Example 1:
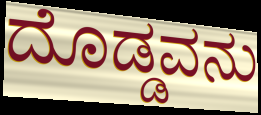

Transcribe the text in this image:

ದೊಡ್ಡವನು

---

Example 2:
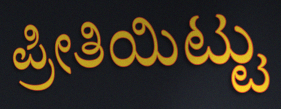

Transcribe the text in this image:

ಪ್ರೀತಿಯಿಟ್ಟು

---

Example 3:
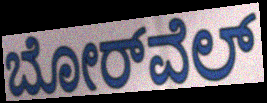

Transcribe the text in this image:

ಬೋರ್‌ವೆಲ್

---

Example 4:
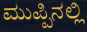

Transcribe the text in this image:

ಮುಪ್ಪಿನಲ್ಲಿ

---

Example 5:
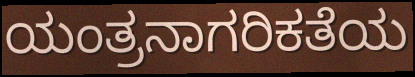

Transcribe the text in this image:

ಯಂತ್ರನಾಗರಿಕತೆಯ